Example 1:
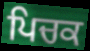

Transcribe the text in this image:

ਪਿਚਕ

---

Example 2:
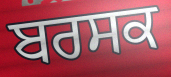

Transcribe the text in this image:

ਬਰਸਕ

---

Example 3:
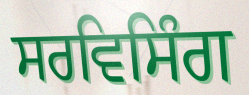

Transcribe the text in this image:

ਸਰਵਿਸਿੰਗ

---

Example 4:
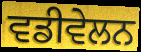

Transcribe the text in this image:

ਵਡੀਵੇਲਨ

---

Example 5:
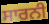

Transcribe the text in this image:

ਸਾਰਨੀ